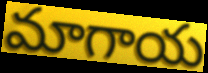
మాగాయ